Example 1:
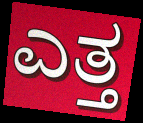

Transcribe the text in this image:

ಎತ್ತ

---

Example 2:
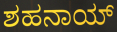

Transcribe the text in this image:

ಶಹನಾಯ್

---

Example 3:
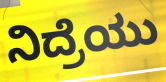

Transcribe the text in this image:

ನಿದ್ರೆಯು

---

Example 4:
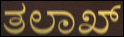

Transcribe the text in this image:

ತಲಾಖ್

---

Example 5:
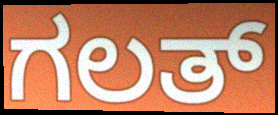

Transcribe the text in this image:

ಗಲತ್